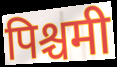
पिश्चमी